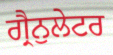
ਗ੍ਰੈਨੁਲੇਟਰ